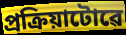
প্ৰক্ৰিয়াটোৱে